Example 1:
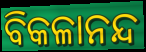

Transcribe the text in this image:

ବିକଳାନନ୍ଦ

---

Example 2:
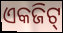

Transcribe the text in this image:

ଏକଜିଟ୍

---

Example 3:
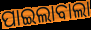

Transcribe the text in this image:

ପାଇଲାବାଲା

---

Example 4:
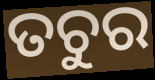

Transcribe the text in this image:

ତଚୁର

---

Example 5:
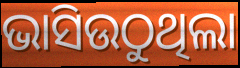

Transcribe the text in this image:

ଭାସିଉଠୁଥିଲା